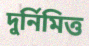
দুর্নিমিত্ত